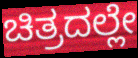
ಚಿತ್ರದಲ್ಲೇ